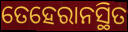
ତେହେରାନସ୍ଥିତ